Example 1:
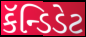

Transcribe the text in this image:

કૅન્ડિડેટ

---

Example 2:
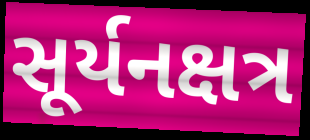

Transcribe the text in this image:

સૂર્યનક્ષત્ર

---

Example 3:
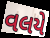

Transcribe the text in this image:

વલયે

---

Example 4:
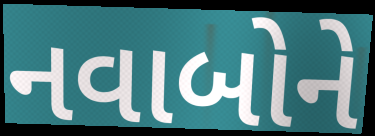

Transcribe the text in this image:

નવાબોને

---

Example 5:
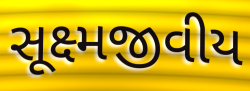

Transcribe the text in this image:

સૂક્ષ્મજીવીય